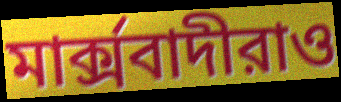
মার্ক্সবাদীরাও